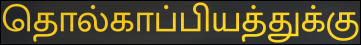
தொல்காப்பியத்துக்கு